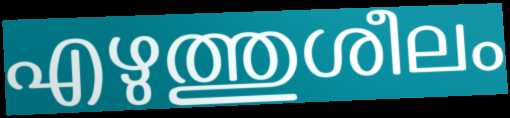
എഴുത്തുശീലം